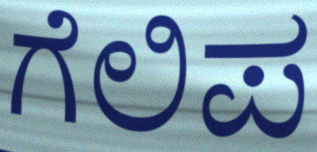
ಗೆಲಿಪ